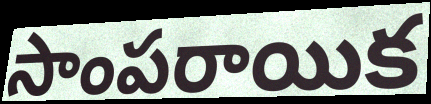
సాంపరాయిక